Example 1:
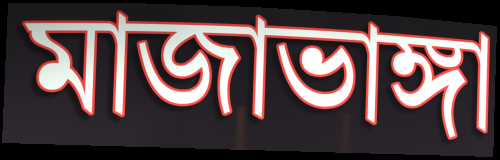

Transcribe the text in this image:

মাজাভাঙ্গা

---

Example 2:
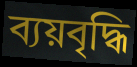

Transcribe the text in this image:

ব্যয়বৃদ্ধি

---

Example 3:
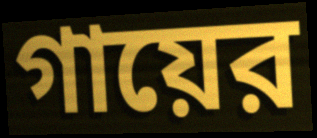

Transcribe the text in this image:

গায়ের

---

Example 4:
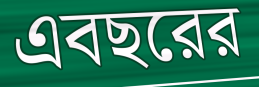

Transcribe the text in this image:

এবছরের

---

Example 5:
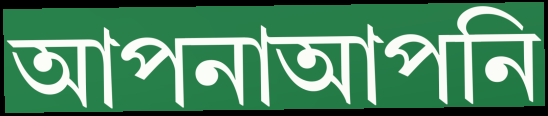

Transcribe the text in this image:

আপনাআপনি